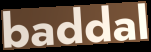
baddal